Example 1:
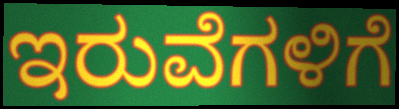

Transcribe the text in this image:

ಇರುವೆಗಳಿಗೆ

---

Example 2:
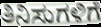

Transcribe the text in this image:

ತಿನಿಸುಗಳಿಗೆ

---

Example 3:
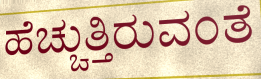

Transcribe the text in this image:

ಹೆಚ್ಚುತ್ತಿರುವಂತೆ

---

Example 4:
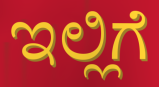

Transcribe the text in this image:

ಇಲ್ಲಿಗೆ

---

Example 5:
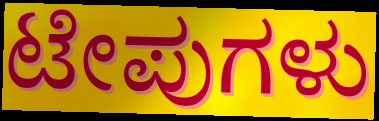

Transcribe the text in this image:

ಟೇಪುಗಳು